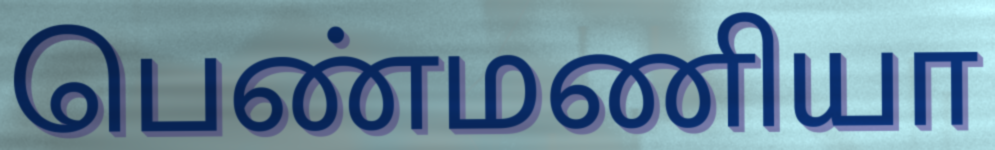
பெண்மணியா